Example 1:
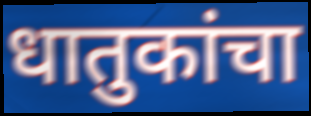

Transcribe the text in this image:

धातुकांचा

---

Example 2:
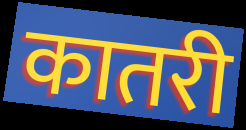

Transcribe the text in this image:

कातरी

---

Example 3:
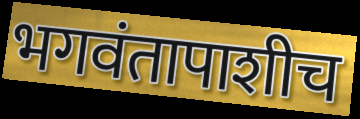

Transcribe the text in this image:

भगवंतापाशीच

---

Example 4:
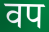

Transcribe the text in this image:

वप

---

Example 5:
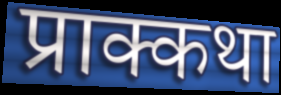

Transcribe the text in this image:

प्राक्कथा